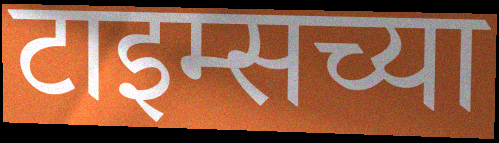
टाइम्सच्या